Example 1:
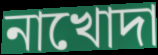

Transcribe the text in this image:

নাখোদা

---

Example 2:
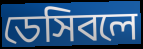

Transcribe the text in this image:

ডেসিবলে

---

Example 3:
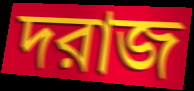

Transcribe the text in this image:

দরাজ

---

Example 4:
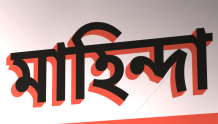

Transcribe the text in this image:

মাহিন্দা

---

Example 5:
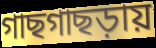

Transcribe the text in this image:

গাছগাছড়ায়